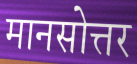
मानसोत्तर